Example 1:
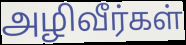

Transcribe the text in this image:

அழிவீர்கள்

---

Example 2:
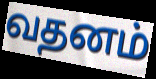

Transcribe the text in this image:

வதனம்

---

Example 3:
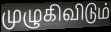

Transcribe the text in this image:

முழுகிவிடும்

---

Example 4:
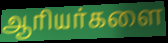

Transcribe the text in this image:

ஆரியர்களை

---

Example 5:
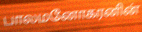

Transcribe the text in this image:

பாலமனோகரனின்